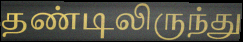
தண்டிலிருந்து